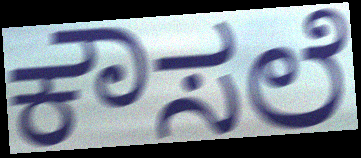
ಕೌಸಲೆ